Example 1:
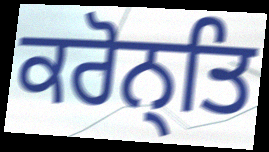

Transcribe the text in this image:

ਕਰੋਨ੍ਤਿ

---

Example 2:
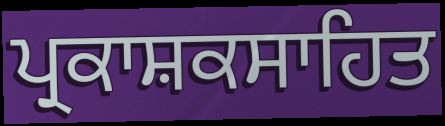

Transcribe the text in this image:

ਪ੍ਰਕਾਸ਼ਕਸਾਹਿਤ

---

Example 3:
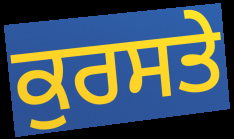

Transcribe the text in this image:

ਕੁਰਸਤੇ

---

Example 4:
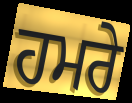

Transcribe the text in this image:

ਹਮਰੇ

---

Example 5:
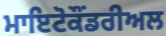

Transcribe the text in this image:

ਮਾਇਟੋਕੌਂਡਰੀਅਲ